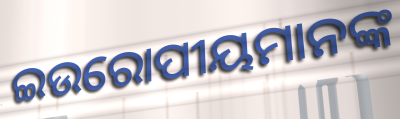
ଇଉରୋପୀୟମାନଙ୍କ